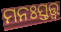
ମନଃସ୍ତତ୍ତ୍ଵ